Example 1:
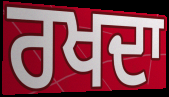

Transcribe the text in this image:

ਰਖਦਾ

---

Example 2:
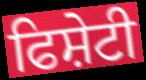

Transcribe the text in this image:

ਫਿਸ਼ੇਟੀ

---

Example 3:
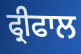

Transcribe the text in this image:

ਫ੍ਰੀਫਾਲ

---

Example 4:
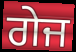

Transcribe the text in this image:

ਗੇਜ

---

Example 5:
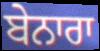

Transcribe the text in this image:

ਬੇਨਾਰਾ